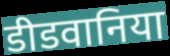
डीडवानिया